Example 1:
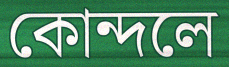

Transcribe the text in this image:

কোন্দলে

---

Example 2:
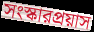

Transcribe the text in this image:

সংস্কারপ্রয়াস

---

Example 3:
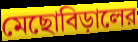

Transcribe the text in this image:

মেছোবিড়ালের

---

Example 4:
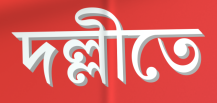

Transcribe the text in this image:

দল্লীতে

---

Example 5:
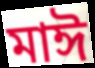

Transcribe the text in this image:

মাঈ